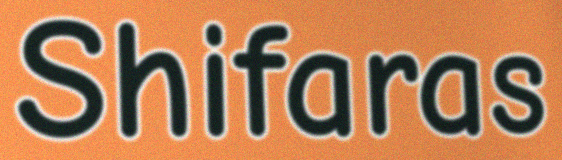
Shifaras